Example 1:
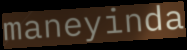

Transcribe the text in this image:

maneyinda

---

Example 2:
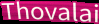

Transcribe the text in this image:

Thovalai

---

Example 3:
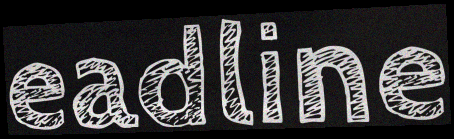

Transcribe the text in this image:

eadline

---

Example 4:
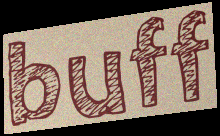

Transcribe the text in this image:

buff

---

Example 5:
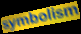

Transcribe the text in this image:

symbolism